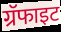
ग्रॅफाइट